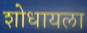
शोधायला